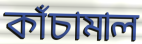
কাঁচামাল